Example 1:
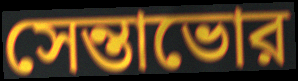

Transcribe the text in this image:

সেন্তাভোর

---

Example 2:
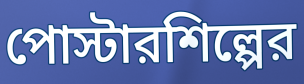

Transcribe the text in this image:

পোস্টারশিল্পের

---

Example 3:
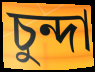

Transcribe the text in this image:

চুন্দা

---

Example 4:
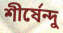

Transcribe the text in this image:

শীর্ষেন্দু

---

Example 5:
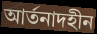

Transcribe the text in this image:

আর্তনাদহীন